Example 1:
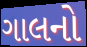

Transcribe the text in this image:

ગાલનો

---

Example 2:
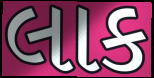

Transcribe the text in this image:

લાક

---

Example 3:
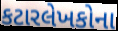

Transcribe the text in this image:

કટારલેખકોના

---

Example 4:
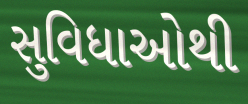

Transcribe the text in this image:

સુવિધાઓથી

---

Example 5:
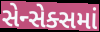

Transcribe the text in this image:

સેન્સેક્સમાં